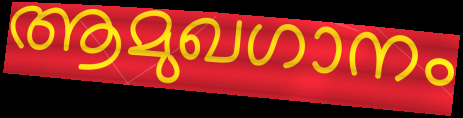
ആമുഖഗാനം